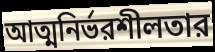
আত্মনির্ভরশীলতার